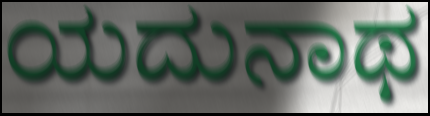
ಯದುನಾಥ